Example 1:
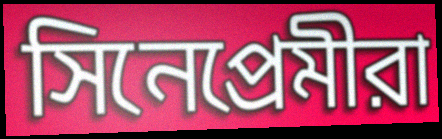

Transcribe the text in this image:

সিনেপ্রেমীরা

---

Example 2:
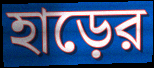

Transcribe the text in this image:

হাড়ের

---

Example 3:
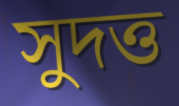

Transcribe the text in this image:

সুদত্ত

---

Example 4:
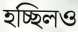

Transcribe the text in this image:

হচ্ছিলও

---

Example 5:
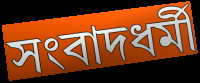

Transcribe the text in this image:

সংবাদধর্মী